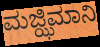
ಮಜ್ಝಿಮಾನಿ